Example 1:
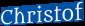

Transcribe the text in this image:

Christof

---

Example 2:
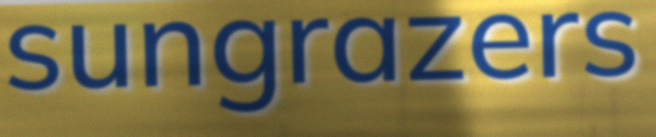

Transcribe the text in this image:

sungrazers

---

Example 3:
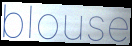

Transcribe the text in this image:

blouse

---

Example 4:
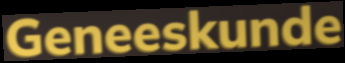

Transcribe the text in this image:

Geneeskunde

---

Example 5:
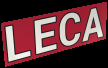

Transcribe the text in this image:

LECA